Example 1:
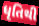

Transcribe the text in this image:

ધૃતિથી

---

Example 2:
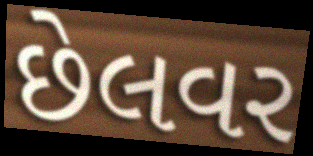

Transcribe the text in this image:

છેલવર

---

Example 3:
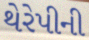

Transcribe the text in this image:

થેરેપીની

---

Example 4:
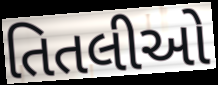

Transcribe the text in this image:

તિતલીઓ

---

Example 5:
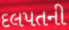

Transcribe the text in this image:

દલપતની